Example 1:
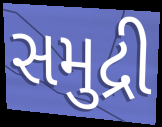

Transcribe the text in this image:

સમુદ્રી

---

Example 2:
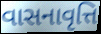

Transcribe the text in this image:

વાસનાવૃત્તિ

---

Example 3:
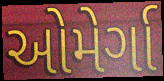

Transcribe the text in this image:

ઓમેર્ગા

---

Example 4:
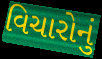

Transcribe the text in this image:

વિચારોનું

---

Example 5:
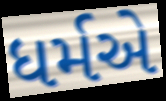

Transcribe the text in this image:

ધર્મએ